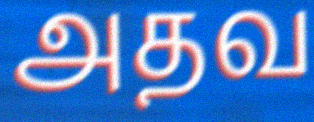
அதவ